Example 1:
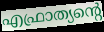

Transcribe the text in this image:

എഫ്രാത്യന്റെ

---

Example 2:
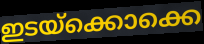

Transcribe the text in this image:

ഇടയ്ക്കൊക്കെ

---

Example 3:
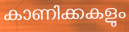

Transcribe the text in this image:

കാണിക്കകളും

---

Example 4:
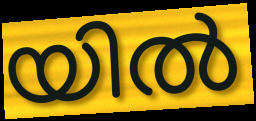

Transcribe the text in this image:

യിൽ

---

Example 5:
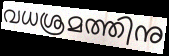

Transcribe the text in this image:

വധശ്രമത്തിനു